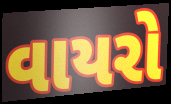
વાયરો